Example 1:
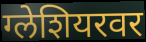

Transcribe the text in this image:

ग्लेशियरवर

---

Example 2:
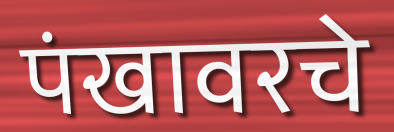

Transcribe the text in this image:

पंखावरचे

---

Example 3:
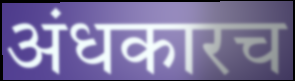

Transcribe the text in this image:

अंधकारच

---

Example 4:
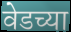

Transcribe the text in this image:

वेडच्या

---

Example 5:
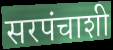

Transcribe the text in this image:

सरपंचाशी